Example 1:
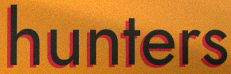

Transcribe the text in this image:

hunters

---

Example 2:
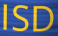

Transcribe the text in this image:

ISD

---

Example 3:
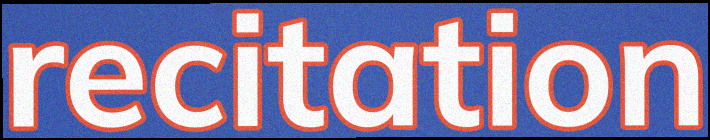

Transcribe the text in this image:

recitation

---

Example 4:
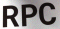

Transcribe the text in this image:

RPC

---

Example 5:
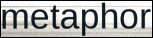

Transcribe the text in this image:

metaphor